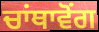
ਚਾਂਥਾਵੋਂਗ